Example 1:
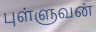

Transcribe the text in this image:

புள்ளுவன்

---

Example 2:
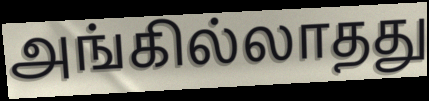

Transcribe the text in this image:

அங்கில்லாதது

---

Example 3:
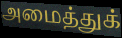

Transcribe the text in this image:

அமைத்துக்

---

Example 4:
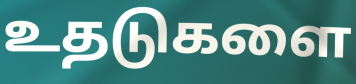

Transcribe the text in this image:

உதடுகளை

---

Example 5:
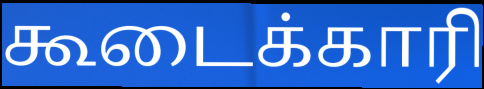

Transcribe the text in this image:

கூடைக்காரி